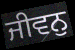
ਜੀਵਨੁ